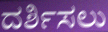
ದರ್ಶಿಸಲು